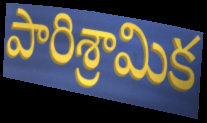
పారిశ్రామిక